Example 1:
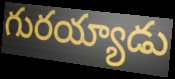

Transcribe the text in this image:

గురయ్యాడు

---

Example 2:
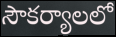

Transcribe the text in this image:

సౌకర్యాలలో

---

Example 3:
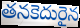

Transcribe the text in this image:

తనకెదురైన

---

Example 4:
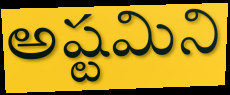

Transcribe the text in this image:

అష్టమిని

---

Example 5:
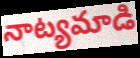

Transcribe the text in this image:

నాట్యమాడి